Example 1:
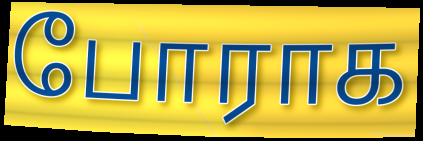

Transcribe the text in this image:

போராக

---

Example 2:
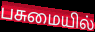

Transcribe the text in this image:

பசுமையில்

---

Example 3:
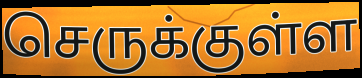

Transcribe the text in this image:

செருக்குள்ள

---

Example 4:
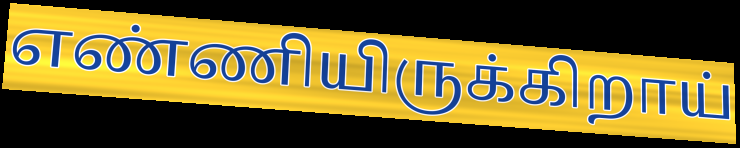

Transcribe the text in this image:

எண்ணியிருக்கிறாய்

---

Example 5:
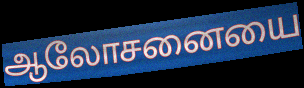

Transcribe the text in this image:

ஆலோசனையை